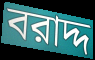
বরাদ্দ